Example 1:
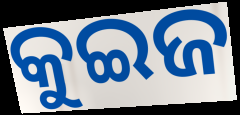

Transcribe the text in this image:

କୁଇଜ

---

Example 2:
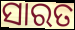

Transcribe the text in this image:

ସାରତ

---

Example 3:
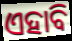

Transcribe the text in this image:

ଏହାବି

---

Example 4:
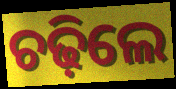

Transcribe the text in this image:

ଚଢ଼ିଲେ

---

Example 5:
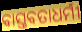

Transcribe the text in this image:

ବାସ୍ତବତାଧର୍ମୀ